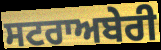
ਸਟਰਾਅਬੇਰੀ